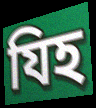
যিহ